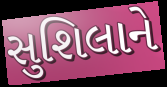
સુશિલાને